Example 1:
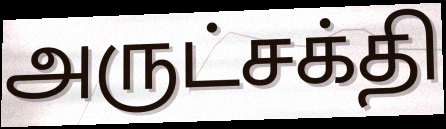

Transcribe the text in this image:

அருட்சக்தி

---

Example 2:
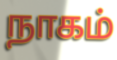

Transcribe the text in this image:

நாகம்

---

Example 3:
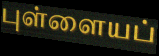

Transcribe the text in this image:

புள்ளையப்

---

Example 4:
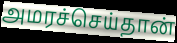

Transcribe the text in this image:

அமரச்செய்தான்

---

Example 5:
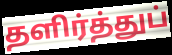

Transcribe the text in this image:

தளிர்த்துப்